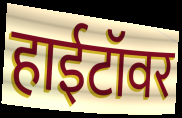
हाईटॉवर